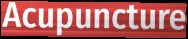
Acupuncture